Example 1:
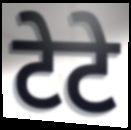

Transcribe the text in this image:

टेटे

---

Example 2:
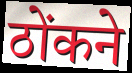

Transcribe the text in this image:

ठोंकने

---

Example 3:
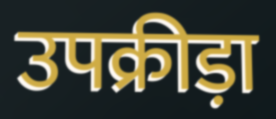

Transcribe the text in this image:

उपक्रीड़ा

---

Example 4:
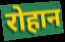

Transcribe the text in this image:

रोहान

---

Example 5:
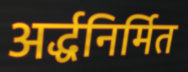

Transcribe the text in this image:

अर्द्धनिर्मित